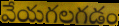
వేయగలగడం